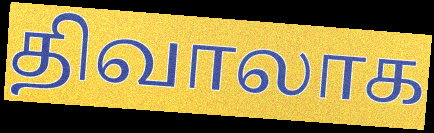
திவாலாக